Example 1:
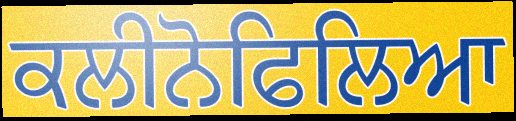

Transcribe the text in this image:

ਕਲੀਨੋਫਿਲਿਆ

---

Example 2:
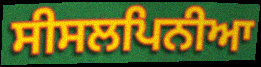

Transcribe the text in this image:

ਸੀਸਲਪਿਨੀਆ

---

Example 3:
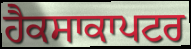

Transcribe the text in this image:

ਹੈਕਸਾਕਾਪਟਰ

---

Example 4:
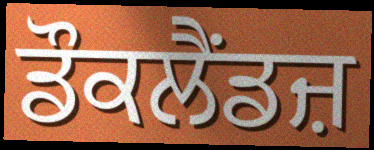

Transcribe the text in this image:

ਡੌਕਲੈਂਡਜ਼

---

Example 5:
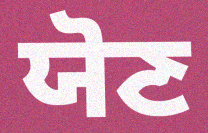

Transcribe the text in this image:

ਯੋਣ